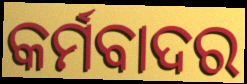
କର୍ମବାଦର